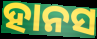
ହାନସ